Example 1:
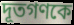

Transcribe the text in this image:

দূতগণকে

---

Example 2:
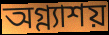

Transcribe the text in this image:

অগ্ন্যাশয়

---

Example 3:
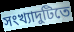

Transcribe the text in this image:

সংখ্যাদুটিতে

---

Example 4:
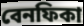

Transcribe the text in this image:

বেনফিকা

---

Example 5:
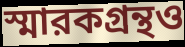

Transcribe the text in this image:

স্মারকগ্রন্থও